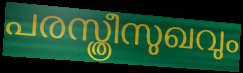
പരസ്ത്രീസുഖവും